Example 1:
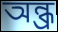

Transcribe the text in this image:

অন্ধ্র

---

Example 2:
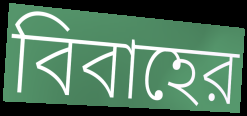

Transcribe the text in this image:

বিবাহের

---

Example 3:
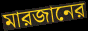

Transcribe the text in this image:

মারজানের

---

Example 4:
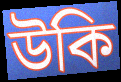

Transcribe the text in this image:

উকি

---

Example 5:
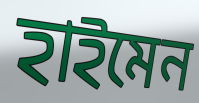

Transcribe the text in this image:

হাইমেন